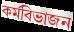
কর্মবিভাজন